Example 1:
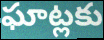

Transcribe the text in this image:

ఘాట్లకు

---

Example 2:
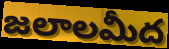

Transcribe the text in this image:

జలాలమీద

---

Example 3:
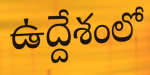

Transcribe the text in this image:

ఉద్దేశంలో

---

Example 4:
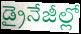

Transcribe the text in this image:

డ్రైనేజీల్లో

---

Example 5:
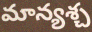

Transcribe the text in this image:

మాన్యశ్చ